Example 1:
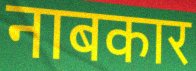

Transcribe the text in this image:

नाबकार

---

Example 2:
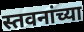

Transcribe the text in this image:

स्तवनांच्या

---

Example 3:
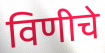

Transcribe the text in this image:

विणीचे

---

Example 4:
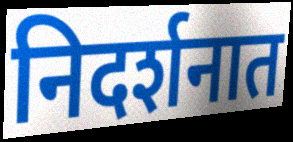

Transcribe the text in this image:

निदर्शनात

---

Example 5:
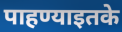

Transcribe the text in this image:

पाहण्याइतके